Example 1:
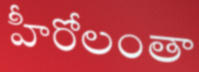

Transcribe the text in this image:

హీరోలంతా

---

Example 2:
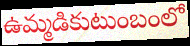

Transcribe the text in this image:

ఉమ్మడికుటుంబంలో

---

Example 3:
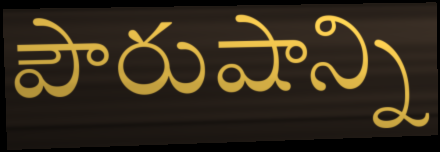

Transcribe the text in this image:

పౌరుషాన్ని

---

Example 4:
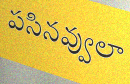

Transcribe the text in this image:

పసినవ్వులా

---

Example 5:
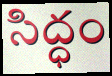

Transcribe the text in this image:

సిద్ధం